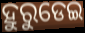
ହୁରୁଡେଇ